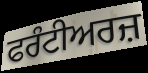
ਫਰੰਟੀਅਰਜ਼